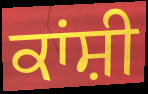
ਕਾਂਸ਼ੀ